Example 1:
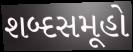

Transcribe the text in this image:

શબ્દસમૂહો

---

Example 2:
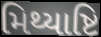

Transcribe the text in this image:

મિથ્યાષ્ટિ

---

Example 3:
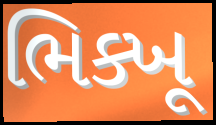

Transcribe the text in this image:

ભિક્ખૂ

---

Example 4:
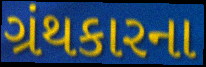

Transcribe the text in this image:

ગ્રંથકારના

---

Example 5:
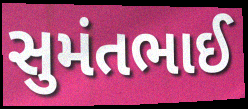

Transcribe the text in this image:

સુમંતભાઈ